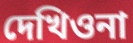
দেখিওনা